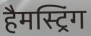
हैमस्ट्रिंग